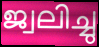
ജ്വലിച്ചു